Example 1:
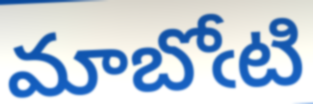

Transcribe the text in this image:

మాబోఁటి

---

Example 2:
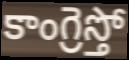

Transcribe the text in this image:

కాంగ్రెస్తో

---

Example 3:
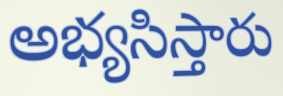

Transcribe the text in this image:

అభ్యసిస్తారు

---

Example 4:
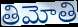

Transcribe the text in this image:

తిమోతి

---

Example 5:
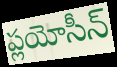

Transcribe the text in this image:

ప్లయోసీన్